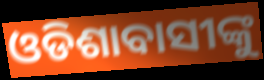
ଓଡିଶାବାସୀଙ୍କୁ